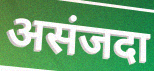
असंजदा